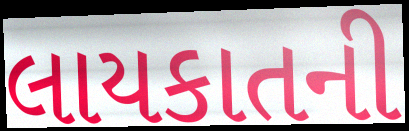
લાયકાતની